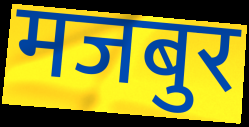
मजबुर